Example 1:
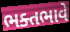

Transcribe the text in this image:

ભક્તભાવે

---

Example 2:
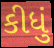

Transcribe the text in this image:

કીધું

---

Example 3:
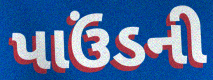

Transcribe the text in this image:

પાઉંડની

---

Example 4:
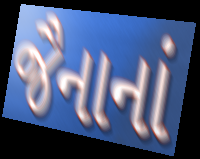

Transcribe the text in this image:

જૈનાનાં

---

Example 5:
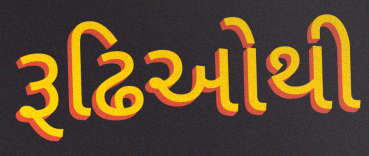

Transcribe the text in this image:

રૂઢિઓથી